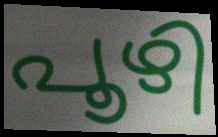
പൂഴി